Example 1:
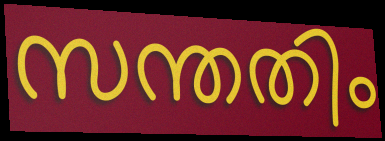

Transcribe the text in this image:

സന്തതിം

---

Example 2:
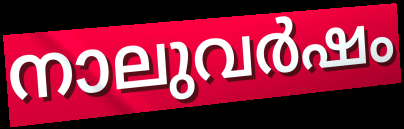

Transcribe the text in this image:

നാലുവർഷം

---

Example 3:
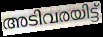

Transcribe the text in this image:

അടിവരയിട്ട്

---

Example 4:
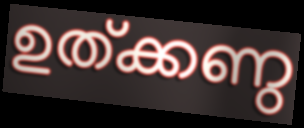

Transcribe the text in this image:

ഉത്ക്കണ്ഠ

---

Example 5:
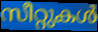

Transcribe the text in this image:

സീറ്റുകൾ